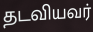
தடவியவர்